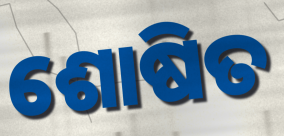
ଶୋଷିତ